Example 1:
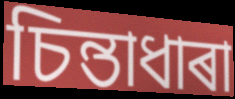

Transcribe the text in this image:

চিন্তাধাৰা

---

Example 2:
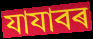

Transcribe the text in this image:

যাযাবৰ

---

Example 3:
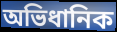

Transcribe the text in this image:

অভিধানিক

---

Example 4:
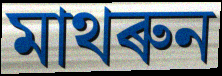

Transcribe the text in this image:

মাথৰুন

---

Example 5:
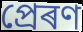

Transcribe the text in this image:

প্ৰেৰণ